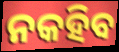
ନକହିବ